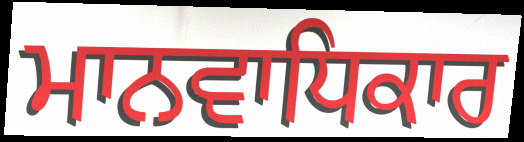
ਮਾਨਵਾਧਿਕਾਰ